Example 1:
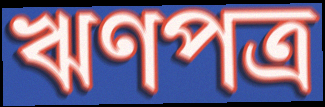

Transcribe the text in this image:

ঋণপত্র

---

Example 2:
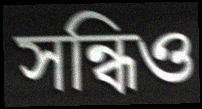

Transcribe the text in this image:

সন্ধিও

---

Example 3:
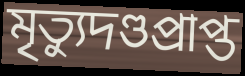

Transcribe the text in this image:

মৃত্যুদণ্ডপ্রাপ্ত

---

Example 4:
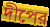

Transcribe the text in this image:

দীপের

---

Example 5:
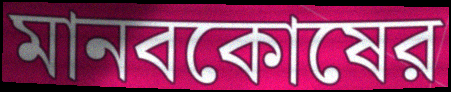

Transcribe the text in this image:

মানবকোষের